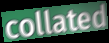
collated